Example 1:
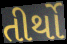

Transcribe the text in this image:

તીર્થો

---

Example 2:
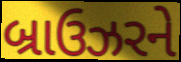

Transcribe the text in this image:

બ્રાઉઝરને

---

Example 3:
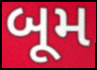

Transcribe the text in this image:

બૂમ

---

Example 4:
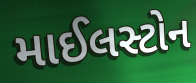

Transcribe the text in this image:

માઈલસ્ટોન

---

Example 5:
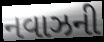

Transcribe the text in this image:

નવાઝની